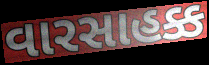
વારસાહક્ક